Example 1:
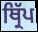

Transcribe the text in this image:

ਥ੍ਰਿੱਪ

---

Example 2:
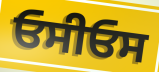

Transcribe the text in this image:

ਓਸੀਓਸ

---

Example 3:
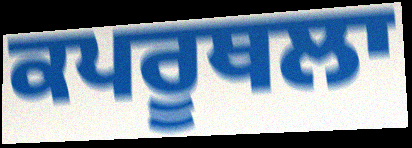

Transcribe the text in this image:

ਕਪਰੂਥਲਾ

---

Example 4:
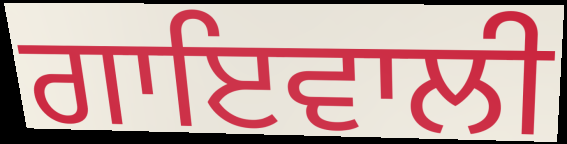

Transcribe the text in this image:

ਗਾਇਵਾਲੀ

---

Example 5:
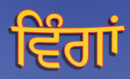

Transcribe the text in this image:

ਵਿੰਗਾਂ